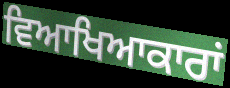
ਵਿਆਖਿਆਕਾਰਾਂ